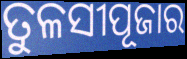
ତୁଳସୀପୂଜାର